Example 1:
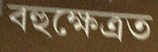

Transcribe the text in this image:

বহুক্ষেত্ৰত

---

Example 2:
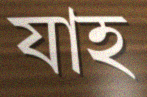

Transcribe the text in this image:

যাহ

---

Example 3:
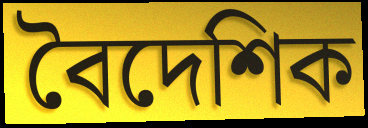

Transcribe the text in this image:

বৈদেশিক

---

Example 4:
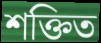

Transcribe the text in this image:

শক্তিত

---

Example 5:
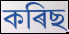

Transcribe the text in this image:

কৰিছ